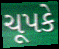
ચૂપકે